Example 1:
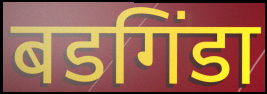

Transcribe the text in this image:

बडगिंडा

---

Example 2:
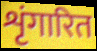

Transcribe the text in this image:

शृंगारित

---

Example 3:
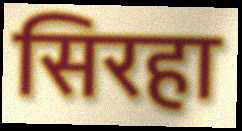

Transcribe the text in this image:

सिरहा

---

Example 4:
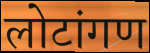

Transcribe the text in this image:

लोटांगण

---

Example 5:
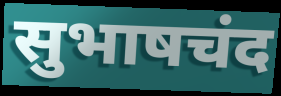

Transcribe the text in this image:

सुभाषचंद